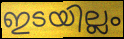
ഇടയില്ലം